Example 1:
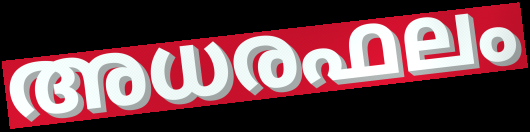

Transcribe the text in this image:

അധരഫലം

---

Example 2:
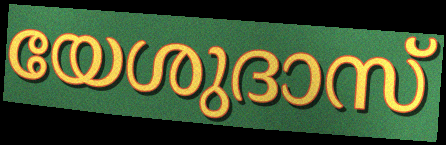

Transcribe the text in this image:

യേശുദാസ്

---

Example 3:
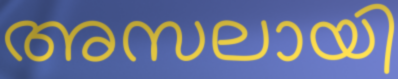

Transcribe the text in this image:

അസലായി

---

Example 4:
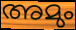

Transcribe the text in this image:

അമും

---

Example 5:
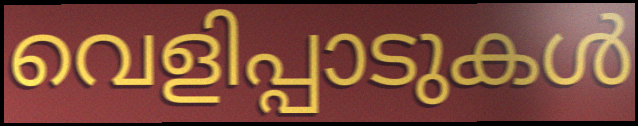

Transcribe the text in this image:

വെളിപ്പാടുകൾ